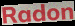
Radon